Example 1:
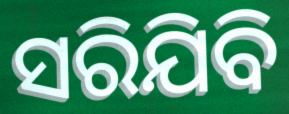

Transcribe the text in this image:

ସରିଯିବି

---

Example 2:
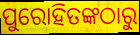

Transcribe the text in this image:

ପୁରୋହିତଙ୍କଠାରୁ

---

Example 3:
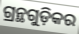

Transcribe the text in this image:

ଗ୍ରନ୍ଥଗୁଡ଼ିକର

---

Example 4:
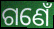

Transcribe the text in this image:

ଗଣେଁ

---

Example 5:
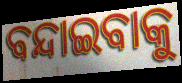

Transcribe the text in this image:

ବନ୍ଦାଇବାକୁ